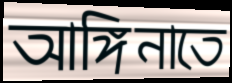
আঙ্গিনাতে